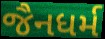
જૈનધર્મ